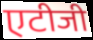
एटीजी